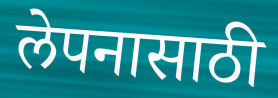
लेपनासाठी